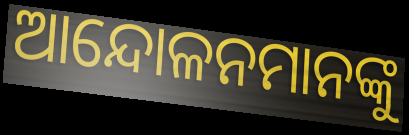
ଆନ୍ଦୋଳନମାନଙ୍କୁ